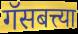
गॅसबत्त्या